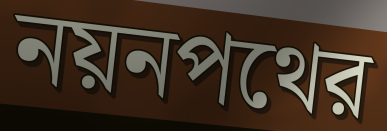
নয়নপথের